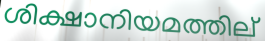
ശിക്ഷാനിയമത്തില്